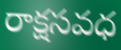
రాక్షసవధ